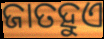
ଜାତହୁଏ